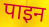
पाइन